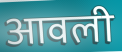
आवली